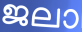
ജലാ